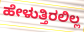
ಹೇಳುತ್ತಿರಲಿಲ್ಲ